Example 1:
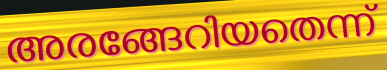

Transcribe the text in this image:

അരങ്ങേറിയതെന്ന്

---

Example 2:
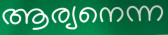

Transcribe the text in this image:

ആര്യനെന്ന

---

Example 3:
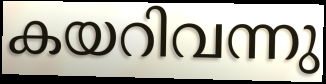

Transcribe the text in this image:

കയറിവന്നു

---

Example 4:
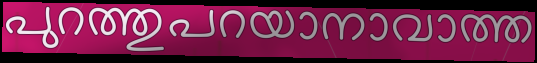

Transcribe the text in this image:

പുറത്തുപറയാനാവാത്ത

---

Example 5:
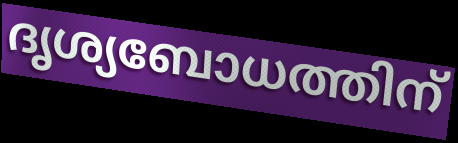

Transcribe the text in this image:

ദൃശ്യബോധത്തിന്